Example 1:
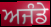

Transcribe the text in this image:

ਅਜੰਡੇ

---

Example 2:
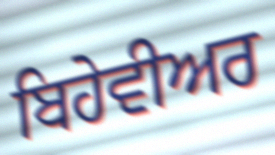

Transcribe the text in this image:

ਬਿਹੇਵੀਅਰ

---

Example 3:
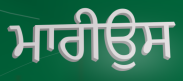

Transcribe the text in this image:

ਮਾਰੀਉਸ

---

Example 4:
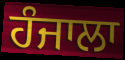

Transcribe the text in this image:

ਹੰਜਾਲਾ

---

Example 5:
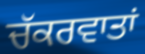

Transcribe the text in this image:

ਚੱਕਰਵਾਤਾਂ